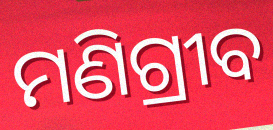
ମଣିଗ୍ରୀବ